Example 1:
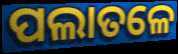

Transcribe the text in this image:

ପଲାତଳେ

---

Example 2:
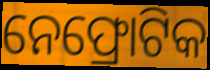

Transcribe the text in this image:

ନେଫ୍ରୋଟିକ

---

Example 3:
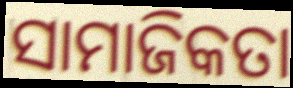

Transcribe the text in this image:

ସାମାଜିକତା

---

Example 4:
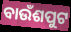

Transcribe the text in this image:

ବାଉଁଶପୁଟ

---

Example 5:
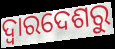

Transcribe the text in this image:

ଦ୍ଵାରଦେଶରୁ